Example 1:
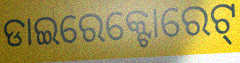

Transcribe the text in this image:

ଡାଇରେକ୍ଟୋରେଟ୍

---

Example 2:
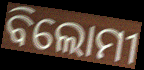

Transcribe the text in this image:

ବିଲୋମୀ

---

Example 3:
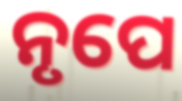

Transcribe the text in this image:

ନୃପେ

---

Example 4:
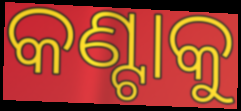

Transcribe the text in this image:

କଣ୍ଟାକୁ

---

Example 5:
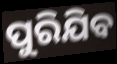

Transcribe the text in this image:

ପୁରିଯିବ